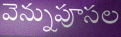
వెన్నుపూసల